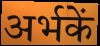
अर्भकें